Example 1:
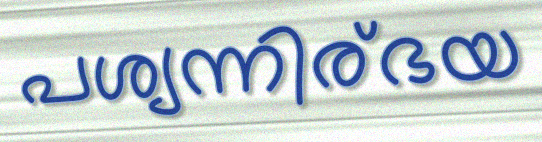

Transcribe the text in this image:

പശ്യന്നിര്ഭയ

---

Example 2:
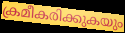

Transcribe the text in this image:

ക്രമീകരിക്കുകയും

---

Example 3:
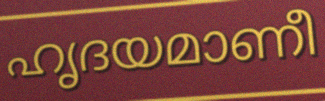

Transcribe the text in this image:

ഹൃദയമാണീ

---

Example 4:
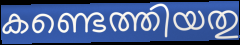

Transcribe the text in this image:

കണ്ടെത്തിയതു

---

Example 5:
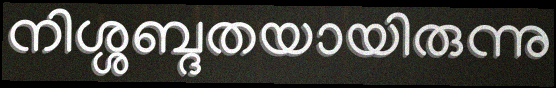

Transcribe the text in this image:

നിശ്ശബ്ദതയായിരുന്നു